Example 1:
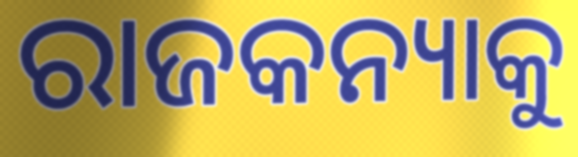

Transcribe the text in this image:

ରାଜକନ୍ୟାକୁ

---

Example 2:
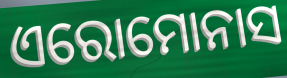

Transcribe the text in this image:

ଏରୋମୋନାସ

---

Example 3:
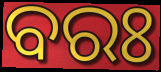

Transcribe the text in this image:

ବରଃ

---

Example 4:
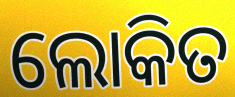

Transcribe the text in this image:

ଲୋକିତ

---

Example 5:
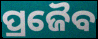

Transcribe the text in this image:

ପ୍ରଜୈବ